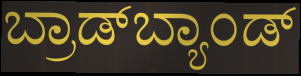
ಬ್ರಾಡ್‌ಬ್ಯಾಂಡ್